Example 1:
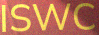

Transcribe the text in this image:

ISWC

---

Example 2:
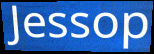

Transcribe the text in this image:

Jessop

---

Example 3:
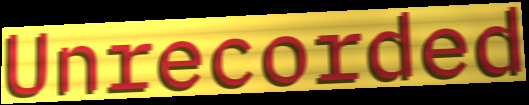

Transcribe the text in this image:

Unrecorded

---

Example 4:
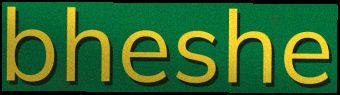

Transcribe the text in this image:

bheshe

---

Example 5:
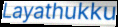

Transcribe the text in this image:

Layathukku